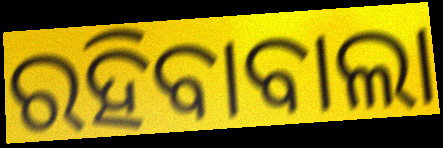
ରହିବାବାଲା